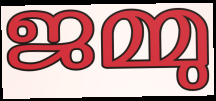
ജമ്മു